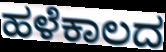
ಹಳೆಕಾಲದ